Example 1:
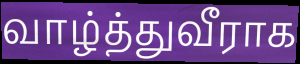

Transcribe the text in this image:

வாழ்த்துவீராக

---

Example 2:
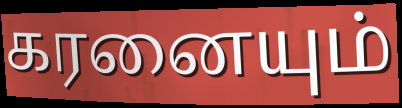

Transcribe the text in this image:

கரனையும்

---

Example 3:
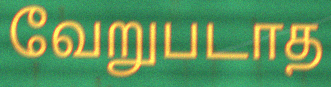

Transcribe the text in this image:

வேறுபடாத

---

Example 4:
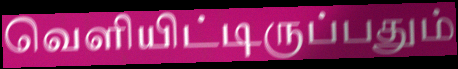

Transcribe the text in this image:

வெளியிட்டிருப்பதும்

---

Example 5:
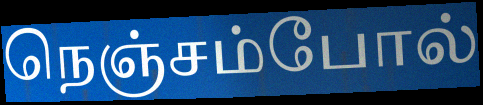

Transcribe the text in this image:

நெஞ்சம்போல்